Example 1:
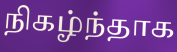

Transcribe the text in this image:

நிகழ்ந்தாக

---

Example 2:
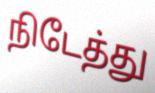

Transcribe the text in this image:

நிடேத்து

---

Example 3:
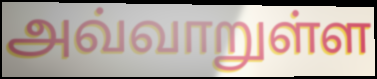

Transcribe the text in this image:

அவ்வாறுள்ள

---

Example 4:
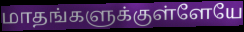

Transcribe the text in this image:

மாதங்களுக்குள்ளேயே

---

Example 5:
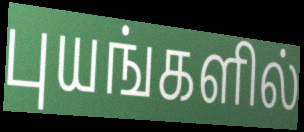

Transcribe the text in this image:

புயங்களில்